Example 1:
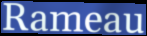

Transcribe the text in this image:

Rameau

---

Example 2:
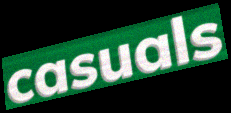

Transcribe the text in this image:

casuals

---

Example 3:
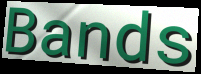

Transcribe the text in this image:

Bands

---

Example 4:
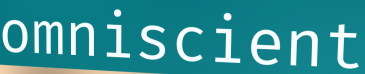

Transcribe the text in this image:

omniscient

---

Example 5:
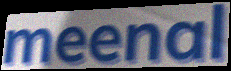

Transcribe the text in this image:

meenal